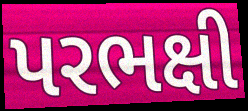
પરભક્ષી